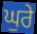
ਘੁਰੇ